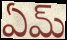
ఏమ్